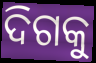
ଦିଗକୁ